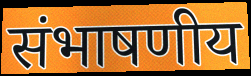
संभाषणीय